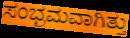
ಸಂಭ್ರಮವಾಗಿತ್ತು